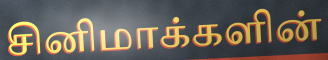
சினிமாக்களின்